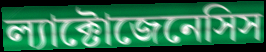
ল্যাক্টোজেনেসিস